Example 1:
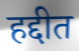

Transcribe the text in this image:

हद्दीत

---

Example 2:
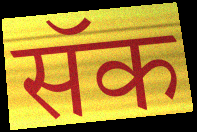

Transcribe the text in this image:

सॅक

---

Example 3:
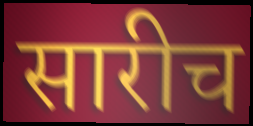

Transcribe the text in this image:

सारीच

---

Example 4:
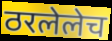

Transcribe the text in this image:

ठरलेलेच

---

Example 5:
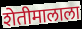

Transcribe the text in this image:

शेतीमालाला